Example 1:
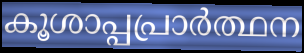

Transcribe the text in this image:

കൂശാപ്പപ്രാർത്ഥന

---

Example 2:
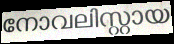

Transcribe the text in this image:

നോവലിസ്റ്റായ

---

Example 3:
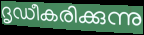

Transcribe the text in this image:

ദൃഡീകരിക്കുന്നു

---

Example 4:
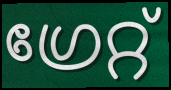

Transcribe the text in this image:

ഗ്രേറ്റ്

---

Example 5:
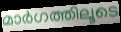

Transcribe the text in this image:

മാർഗത്തിലൂടെ